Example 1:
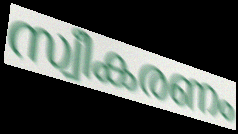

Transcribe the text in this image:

സ്വീകരണം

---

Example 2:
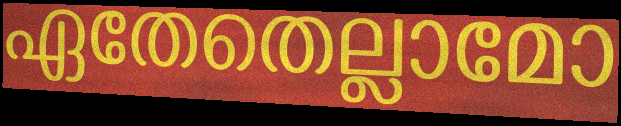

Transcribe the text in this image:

ഏതേതെല്ലാമോ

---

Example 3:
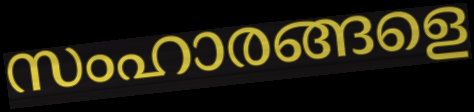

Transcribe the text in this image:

സംഹാരങ്ങളെ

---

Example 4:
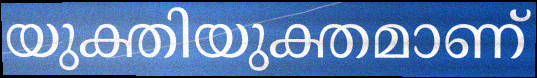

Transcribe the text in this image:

യുക്തിയുക്തമാണ്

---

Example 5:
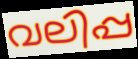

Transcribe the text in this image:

വലിപ്പ